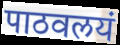
पाठवलयं